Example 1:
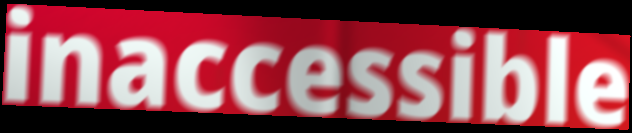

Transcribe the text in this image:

inaccessible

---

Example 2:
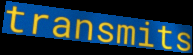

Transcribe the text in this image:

transmits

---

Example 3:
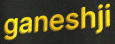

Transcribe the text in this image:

ganeshji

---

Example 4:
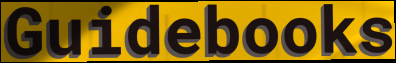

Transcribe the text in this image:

Guidebooks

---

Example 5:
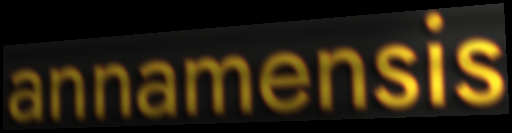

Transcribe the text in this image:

annamensis